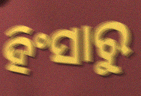
ହିଂସାରୁ